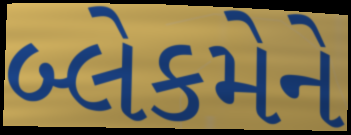
બ્લેકમેને